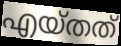
എയ്തത്